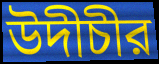
উদীচীর